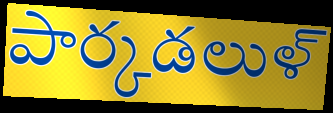
పార్కడలుళ్